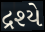
દ્રશ્યે